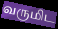
வருமிட